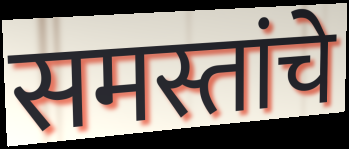
समस्तांचे